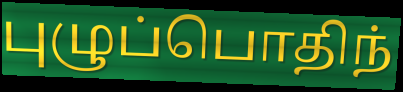
புழுப்பொதிந்